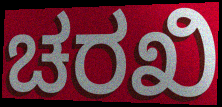
ಚರಖಿ